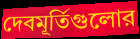
দেবমূর্তিগুলোর